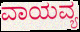
ವಾಯವ್ಯ